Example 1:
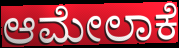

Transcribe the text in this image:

ಆಮೇಲಾಕೆ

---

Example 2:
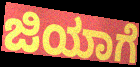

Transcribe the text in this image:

ಜಿಯಾಗೆ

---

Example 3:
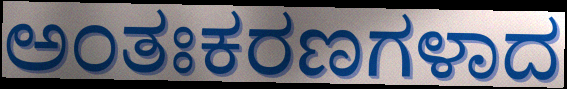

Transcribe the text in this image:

ಅಂತಃಕರಣಗಳಾದ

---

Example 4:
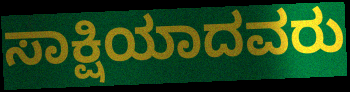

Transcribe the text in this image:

ಸಾಕ್ಷಿಯಾದವರು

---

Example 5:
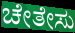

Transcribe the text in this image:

ಚೇತೇಸು